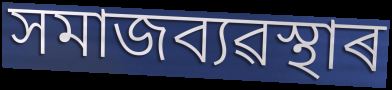
সমাজব্যৱস্থাৰ